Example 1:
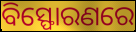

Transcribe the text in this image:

ବିସ୍ଫୋରଣରେ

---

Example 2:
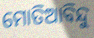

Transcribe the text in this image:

ମୋତିଆବିନ୍ଦୁ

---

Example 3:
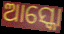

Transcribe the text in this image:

ଆସ୍କୋ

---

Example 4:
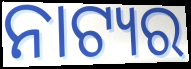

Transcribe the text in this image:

ନାଟ୍ୟର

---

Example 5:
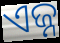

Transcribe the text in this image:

ଏଜ୍ନ